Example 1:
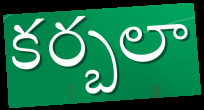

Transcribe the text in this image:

కర్బలా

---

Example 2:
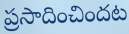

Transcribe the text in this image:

ప్రసాదించిందట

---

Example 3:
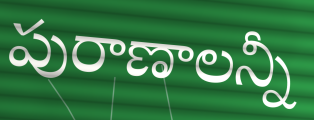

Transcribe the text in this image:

పురాణాలన్నీ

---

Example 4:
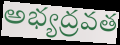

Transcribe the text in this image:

అభ్యద్రవత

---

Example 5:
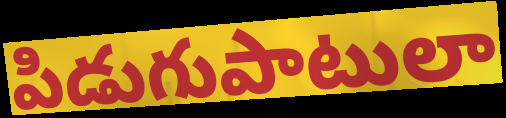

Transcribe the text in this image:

పిడుగుపాటులా